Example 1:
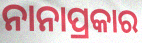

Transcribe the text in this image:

ନାନାପ୍ରକାର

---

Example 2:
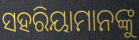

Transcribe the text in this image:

ସହରିୟାମାନଙ୍କୁ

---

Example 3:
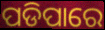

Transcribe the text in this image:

ପଡିପାରେ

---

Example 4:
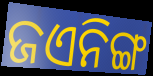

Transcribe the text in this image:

ଜଏନିଙ୍ଗ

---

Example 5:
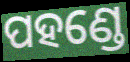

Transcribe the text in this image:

ପହଣ୍ଡେ